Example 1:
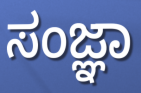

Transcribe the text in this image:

ಸಂಜ್ಞಾ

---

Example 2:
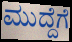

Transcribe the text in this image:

ಮುದ್ದೆಗೆ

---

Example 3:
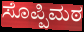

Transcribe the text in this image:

ಸೊಪ್ಪಿಮಠ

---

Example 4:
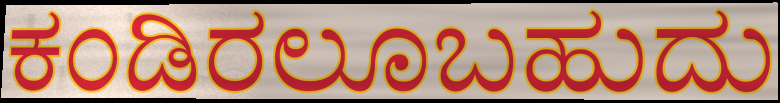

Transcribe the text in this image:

ಕಂಡಿರಲೂಬಹುದು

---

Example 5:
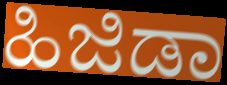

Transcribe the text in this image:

ಹಿಜಿಡಾ